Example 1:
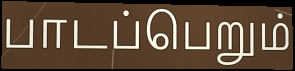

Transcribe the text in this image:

பாடப்பெறும்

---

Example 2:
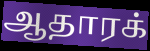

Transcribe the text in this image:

ஆதாரக்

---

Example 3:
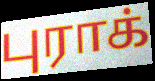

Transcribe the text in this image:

புராக்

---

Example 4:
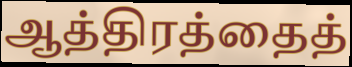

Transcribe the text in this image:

ஆத்திரத்தைத்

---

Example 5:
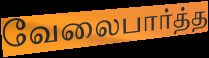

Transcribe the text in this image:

வேலைபார்த்த